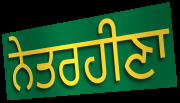
ਨੇਤਰਹੀਣਾ